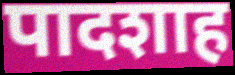
पादशाह